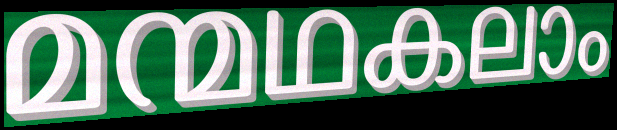
മന്മഥകലാം